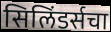
सिलिंडर्सचा